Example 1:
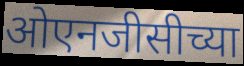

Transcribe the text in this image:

ओएनजीसीच्या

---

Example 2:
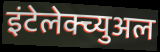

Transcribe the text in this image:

इंटेलेक्च्युअल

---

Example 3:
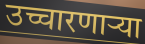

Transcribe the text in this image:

उच्चारणाऱ्या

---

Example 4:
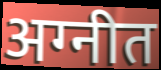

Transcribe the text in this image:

अग्नीत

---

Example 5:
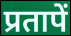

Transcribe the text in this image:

प्रतापें